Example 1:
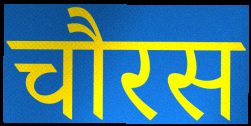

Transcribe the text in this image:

चौरस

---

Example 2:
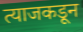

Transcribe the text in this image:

त्याजकडून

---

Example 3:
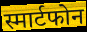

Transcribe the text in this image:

स्मार्टफोन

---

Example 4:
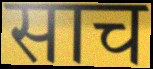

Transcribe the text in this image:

साच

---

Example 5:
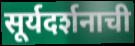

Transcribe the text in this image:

सूर्यदर्शनाची